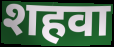
शहवा